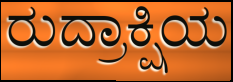
ರುದ್ರಾಕ್ಷಿಯ